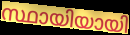
സ്ഥായിയായി